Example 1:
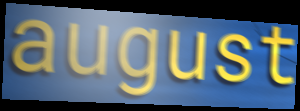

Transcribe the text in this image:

august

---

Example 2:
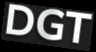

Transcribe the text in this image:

DGT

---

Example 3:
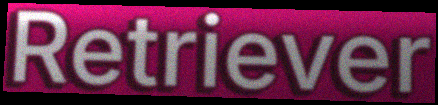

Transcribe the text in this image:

Retriever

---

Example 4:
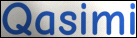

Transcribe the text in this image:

Qasimi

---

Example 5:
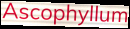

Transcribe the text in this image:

Ascophyllum